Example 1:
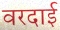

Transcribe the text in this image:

वरदाई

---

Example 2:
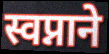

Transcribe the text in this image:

स्वप्नाने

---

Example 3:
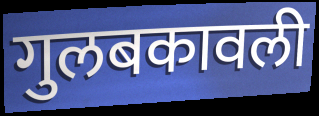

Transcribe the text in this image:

गुलबकावली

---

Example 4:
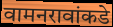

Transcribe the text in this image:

वामनरावांकडे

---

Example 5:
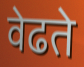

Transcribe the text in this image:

वेढते